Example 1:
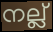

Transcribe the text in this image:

നല്ല്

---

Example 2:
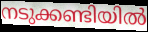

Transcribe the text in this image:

നടുക്കണ്ടിയിൽ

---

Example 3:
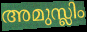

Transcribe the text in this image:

അമുസ്ലിം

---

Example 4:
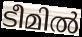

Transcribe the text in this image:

ടീമിൽ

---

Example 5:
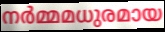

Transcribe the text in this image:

നർമ്മമധുരമായ